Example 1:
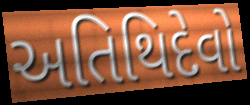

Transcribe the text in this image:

અતિથિદેવો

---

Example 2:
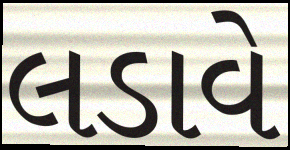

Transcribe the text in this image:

લડાવે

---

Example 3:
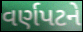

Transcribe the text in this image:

વર્ણપટને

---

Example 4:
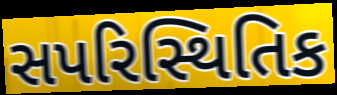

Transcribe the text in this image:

સપરિસ્થિતિક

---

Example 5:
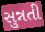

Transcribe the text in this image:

સુન્નતી